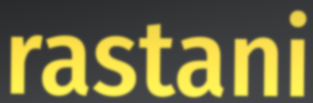
rastani